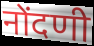
नोंदणी